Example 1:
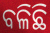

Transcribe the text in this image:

ବଳିଛି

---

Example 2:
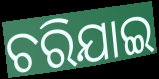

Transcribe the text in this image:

ଚରିଯାଇ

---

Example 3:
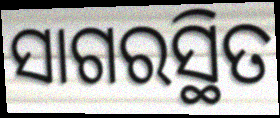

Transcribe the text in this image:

ସାଗରସ୍ଥିତ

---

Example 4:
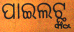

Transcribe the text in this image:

ପାଇଲଟ୍ଙ୍କୁ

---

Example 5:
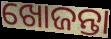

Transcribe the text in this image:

ଖୋଜନ୍ତା